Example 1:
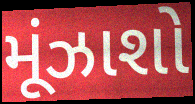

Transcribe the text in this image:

મૂંઝાશો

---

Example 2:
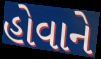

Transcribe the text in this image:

હોવાને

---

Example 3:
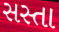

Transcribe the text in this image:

સસ્તા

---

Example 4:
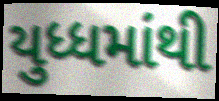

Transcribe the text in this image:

યુધ્ધમાંથી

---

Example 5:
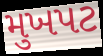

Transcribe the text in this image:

મુખપટ